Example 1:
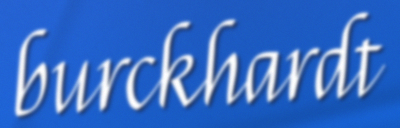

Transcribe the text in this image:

burckhardt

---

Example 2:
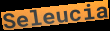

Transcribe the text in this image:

Seleucia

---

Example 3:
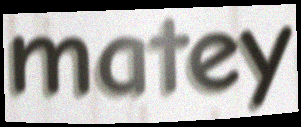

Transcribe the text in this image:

matey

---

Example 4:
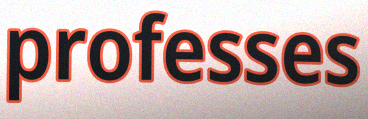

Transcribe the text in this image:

professes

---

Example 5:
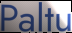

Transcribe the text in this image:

Paltu